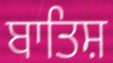
ਬਾਤਿਸ਼